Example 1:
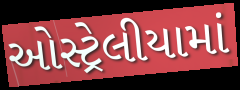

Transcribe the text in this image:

ઓસ્ટ્રેલીયામાં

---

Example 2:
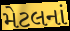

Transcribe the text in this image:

મેટલનાં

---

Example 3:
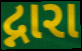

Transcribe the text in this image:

દ્નારા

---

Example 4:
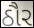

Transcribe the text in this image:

ઠૌર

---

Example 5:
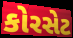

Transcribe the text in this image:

કોરસેટ